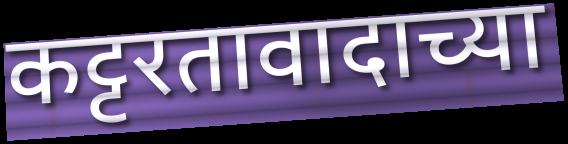
कट्टरतावादाच्या